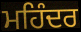
ਮਹਿੰਦਰ